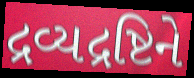
દ્રવ્યદ્રષ્ટિને